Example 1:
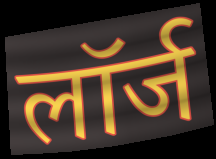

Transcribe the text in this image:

लॉर्ज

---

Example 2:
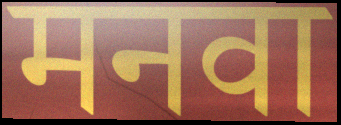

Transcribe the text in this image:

मनवा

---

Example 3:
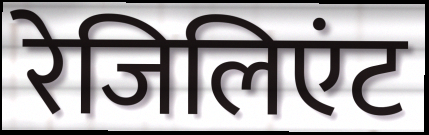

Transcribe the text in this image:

रेजिलिएंट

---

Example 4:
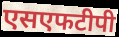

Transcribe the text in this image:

एसएफटीपी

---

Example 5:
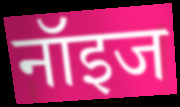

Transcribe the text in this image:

नॉइज